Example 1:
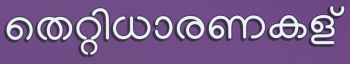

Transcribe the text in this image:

തെറ്റിധാരണകള്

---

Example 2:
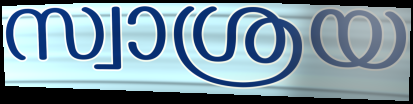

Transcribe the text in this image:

സ്വാശ്രയ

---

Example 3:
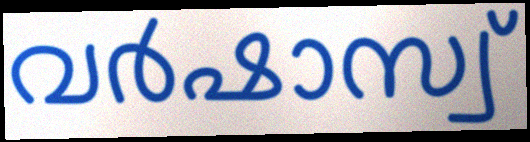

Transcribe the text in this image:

വർഷാസ്വ്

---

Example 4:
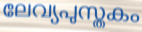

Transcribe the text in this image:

ലേവ്യപുസ്തകം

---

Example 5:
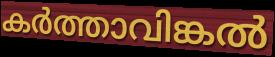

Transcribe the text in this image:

കർത്താവിങ്കൽ